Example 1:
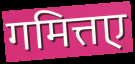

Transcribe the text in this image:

गमित्तए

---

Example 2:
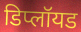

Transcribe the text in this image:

डिप्लॉयड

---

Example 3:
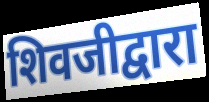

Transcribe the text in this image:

शिवजीद्वारा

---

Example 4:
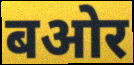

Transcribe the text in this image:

बओर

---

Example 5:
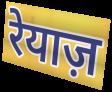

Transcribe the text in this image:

रेयाज़